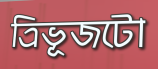
ত্ৰিভূজটো